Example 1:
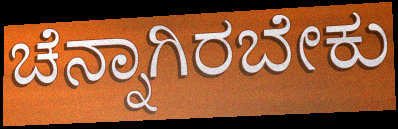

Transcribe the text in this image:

ಚೆನ್ನಾಗಿರಬೇಕು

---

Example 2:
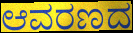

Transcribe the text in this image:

ಆವರಣದ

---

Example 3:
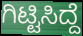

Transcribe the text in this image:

ಗಿಟ್ಟಿಸಿದ್ದೆ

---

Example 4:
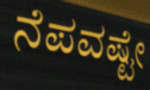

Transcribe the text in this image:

ನೆಪವಷ್ಟೇ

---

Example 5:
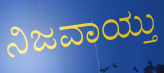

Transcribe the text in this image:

ನಿಜವಾಯ್ತು